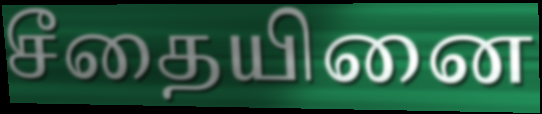
சீதையினை